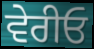
ਵੇਰੀਓ